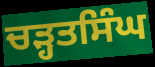
ਚੜ੍ਹਤਸਿੰਘ